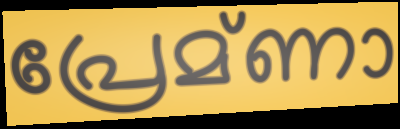
പ്രേമ്ണാ